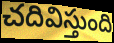
చదివిస్తుంది